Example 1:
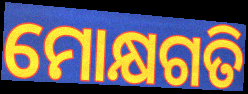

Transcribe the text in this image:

ମୋକ୍ଷଗତି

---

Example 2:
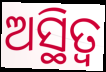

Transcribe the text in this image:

ଅସ୍ଥିତ୍ଵ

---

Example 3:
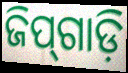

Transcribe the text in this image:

ଜିପ୍‍ଗାଡ଼ି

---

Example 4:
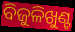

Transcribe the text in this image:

ବିଜୁଳିଖୁଣ୍ଟ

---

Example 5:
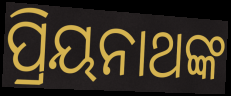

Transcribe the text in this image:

ପ୍ରିୟନାଥଙ୍କ